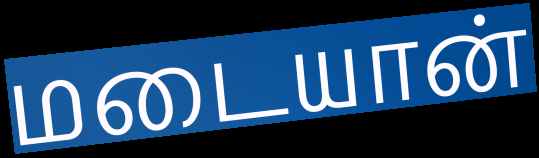
மடையான்